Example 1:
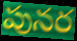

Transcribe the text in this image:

పునర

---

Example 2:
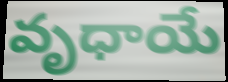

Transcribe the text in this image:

వృధాయే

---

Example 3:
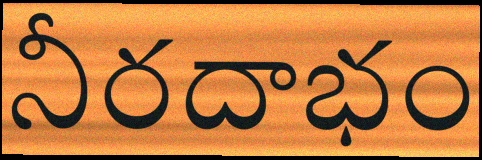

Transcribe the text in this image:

నీరదాభం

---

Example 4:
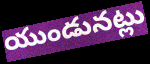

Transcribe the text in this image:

యుండునట్లు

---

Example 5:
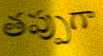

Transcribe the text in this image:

తప్పుగా